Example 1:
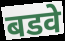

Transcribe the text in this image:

बडवे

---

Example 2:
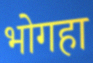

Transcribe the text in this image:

भोगहा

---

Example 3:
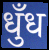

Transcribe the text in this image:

धुँध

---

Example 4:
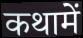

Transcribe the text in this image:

कथामें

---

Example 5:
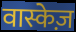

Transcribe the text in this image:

वास्केज़